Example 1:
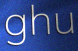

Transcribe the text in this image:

ghu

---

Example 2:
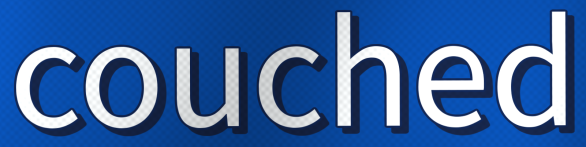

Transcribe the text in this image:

couched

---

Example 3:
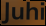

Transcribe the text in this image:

Juhi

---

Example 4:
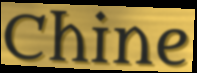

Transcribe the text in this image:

Chine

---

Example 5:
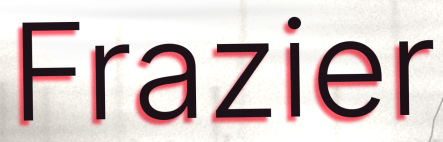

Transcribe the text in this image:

Frazier